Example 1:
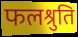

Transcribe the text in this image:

फलश्रुति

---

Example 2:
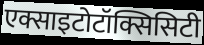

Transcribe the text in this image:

एक्साइटोटॉक्सिसिटी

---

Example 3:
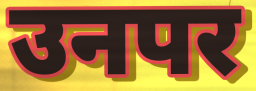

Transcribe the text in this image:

उनपर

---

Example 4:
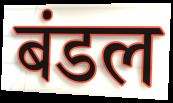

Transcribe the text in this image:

बंडल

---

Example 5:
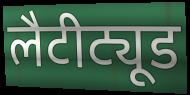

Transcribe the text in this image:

लैटीट्यूड